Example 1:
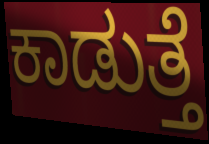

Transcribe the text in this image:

ಕಾಡುತ್ತೆ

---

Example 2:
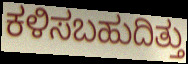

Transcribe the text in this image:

ಕಳಿಸಬಹುದಿತ್ತು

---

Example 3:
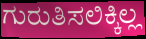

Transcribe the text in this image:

ಗುರುತಿಸಲಿಕ್ಕಿಲ್ಲ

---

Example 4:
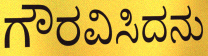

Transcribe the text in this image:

ಗೌರವಿಸಿದನು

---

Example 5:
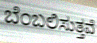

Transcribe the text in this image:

ಬೆಂಬಲಿಸುತ್ತವೆ